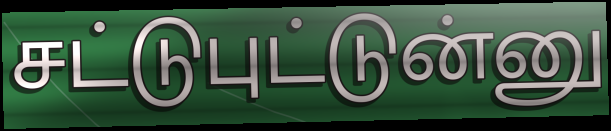
சட்டுபுட்டுன்னு